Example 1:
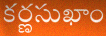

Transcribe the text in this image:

కర్ణసుఖాం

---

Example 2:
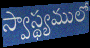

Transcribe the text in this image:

స్వాస్థ్యములో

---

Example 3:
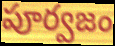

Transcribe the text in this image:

పూర్వజం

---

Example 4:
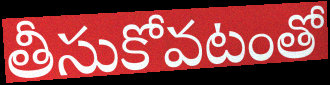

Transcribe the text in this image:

తీసుకోవటంతో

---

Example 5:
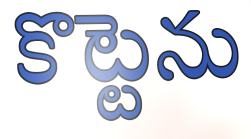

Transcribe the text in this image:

కొట్టెను